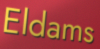
Eldams